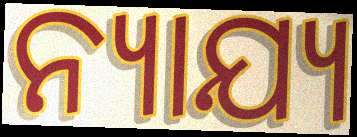
ନ୍ୟାଯ୍ୟ